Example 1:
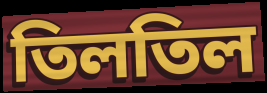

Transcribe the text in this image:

তিলতিল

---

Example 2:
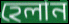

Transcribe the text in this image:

হেলান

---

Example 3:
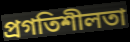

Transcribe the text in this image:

প্রগতিশীলতা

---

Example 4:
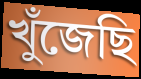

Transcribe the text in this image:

খুঁজেছি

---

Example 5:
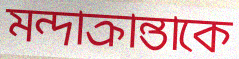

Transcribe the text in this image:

মন্দাক্রান্তাকে